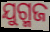
ଯୁଗ୍ମଜ